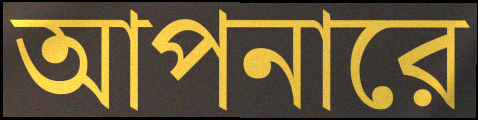
আপনারে